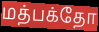
மத்பக்தோ